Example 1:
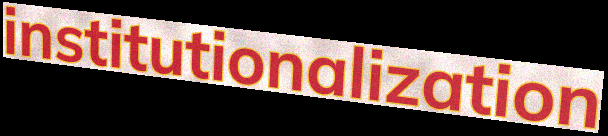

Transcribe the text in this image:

institutionalization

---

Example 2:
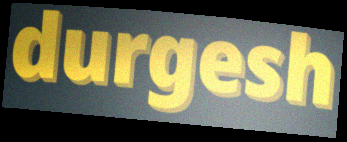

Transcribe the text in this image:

durgesh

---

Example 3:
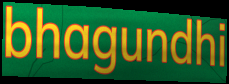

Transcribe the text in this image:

bhagundhi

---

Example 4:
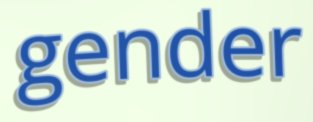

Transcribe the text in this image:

gender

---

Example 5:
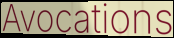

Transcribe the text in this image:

Avocations